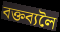
বক্তব্যলৈ